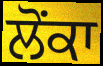
ਲੋਂਕਾ